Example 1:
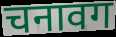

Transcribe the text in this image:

चनावग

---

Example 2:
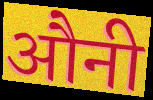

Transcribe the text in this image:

औनी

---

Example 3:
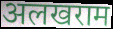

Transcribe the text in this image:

अलखराम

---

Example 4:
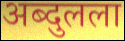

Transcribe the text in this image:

अब्दुलला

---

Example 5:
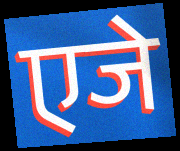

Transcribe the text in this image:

एजे